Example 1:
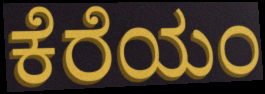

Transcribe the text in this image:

ಕೆರೆಯಂ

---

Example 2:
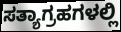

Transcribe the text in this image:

ಸತ್ಯಾಗ್ರಹಗಳಲ್ಲಿ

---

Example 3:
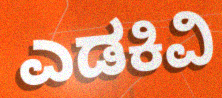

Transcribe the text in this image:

ಎಡಕಿವಿ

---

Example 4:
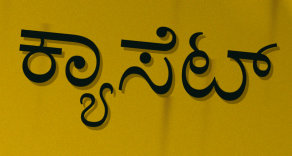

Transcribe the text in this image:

ಕ್ಯಾಸೆಟ್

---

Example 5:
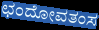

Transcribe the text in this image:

ಛಂದೋವತಂಸ